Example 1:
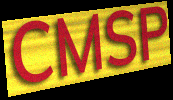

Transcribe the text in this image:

CMSP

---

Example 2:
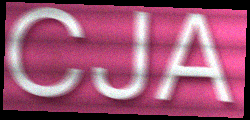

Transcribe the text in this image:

CJA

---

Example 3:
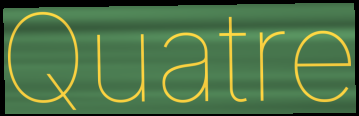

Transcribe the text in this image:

Quatre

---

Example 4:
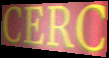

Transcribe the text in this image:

CERC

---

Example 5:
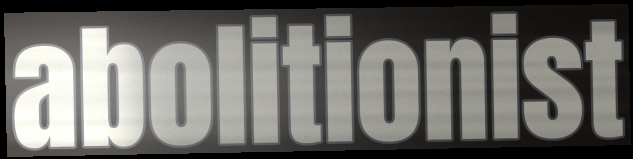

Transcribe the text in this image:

abolitionist